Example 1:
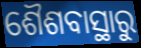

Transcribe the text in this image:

ଶୈଶବାସ୍ଥାରୁ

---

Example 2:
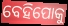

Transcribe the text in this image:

ବେହିପୋକୁ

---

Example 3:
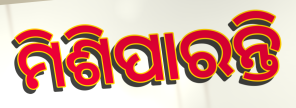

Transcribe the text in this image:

ମିଶିପାରନ୍ତି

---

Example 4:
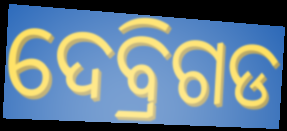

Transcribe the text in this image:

ଦେବ୍ରିଗଡ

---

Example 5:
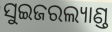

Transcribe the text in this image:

ସୁଇଜରଲ୍ୟାଣ୍ଡ